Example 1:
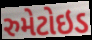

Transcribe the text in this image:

રુમેટોઇડ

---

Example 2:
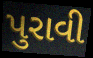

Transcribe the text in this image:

પુરાવી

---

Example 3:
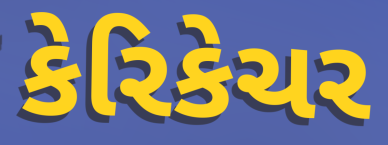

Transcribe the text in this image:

કેરિકેચર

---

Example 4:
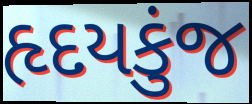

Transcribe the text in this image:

હૃદયકુંજ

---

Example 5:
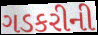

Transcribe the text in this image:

ગડકરીની